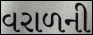
વરાળની